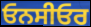
ਓਨਸੀਓਰ